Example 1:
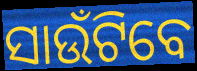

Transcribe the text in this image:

ସାଉଁଟିବେ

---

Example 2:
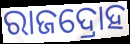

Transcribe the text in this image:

ରାଜଦ୍ରୋହ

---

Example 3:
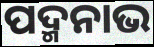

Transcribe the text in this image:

ପଦ୍ମନାଭ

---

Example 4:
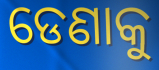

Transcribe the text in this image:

ଡେଣାକୁ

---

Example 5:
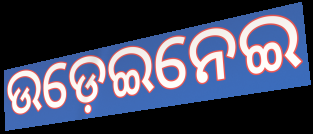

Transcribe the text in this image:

ଉଡ଼େଇନେଇ